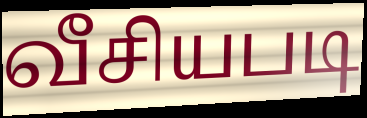
வீசியபடி